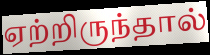
ஏற்றிருந்தால்